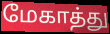
மேகாத்து